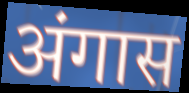
अंगास